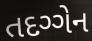
તદગ્ગેન